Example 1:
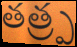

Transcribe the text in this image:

తత్ర్ప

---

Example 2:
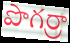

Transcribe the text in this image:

పొగర్రా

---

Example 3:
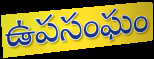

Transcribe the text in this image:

ఉపసంఘం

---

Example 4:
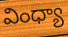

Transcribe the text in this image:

వింధ్యా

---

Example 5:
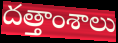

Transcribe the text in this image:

దత్తాంశాలు